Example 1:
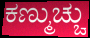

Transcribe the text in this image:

ಕಣ್ಮುಚ್ಚು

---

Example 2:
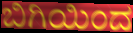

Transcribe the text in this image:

ಬಿಗಿಯಿಂದ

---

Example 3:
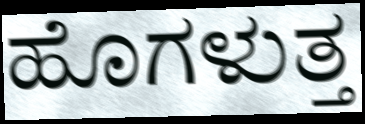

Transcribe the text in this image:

ಹೊಗಳುತ್ತ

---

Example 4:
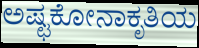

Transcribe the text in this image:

ಅಷ್ಟಕೋನಾಕೃತಿಯ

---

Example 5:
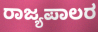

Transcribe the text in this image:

ರಾಜ್ಯಪಾಲರ